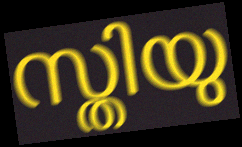
സ്തിയു